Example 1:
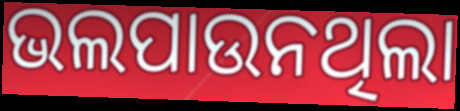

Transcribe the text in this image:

ଭଲପାଉନଥିଲା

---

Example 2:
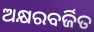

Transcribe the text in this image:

ଅକ୍ଷରବର୍ଜିତ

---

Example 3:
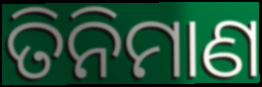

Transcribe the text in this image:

ତିନିମାଣ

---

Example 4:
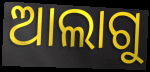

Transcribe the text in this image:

ଆଲାଗୁ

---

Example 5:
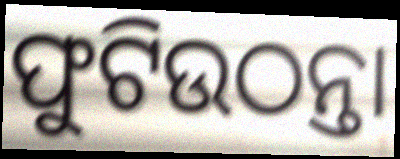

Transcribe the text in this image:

ଫୁଟିଉଠନ୍ତା